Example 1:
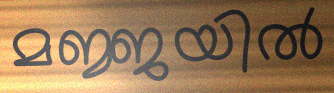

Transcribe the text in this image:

മജ്ജയിൽ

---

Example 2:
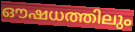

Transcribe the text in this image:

ഔഷധത്തിലും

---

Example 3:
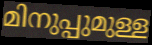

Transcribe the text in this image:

മിനുപ്പുമുള്ള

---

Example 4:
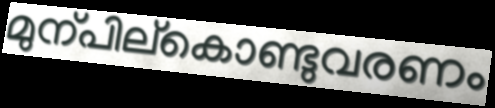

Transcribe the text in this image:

മുന്പില്കൊണ്ടുവരണം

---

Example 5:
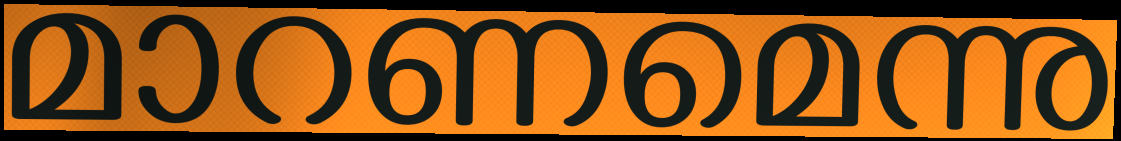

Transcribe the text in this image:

മാറണമെന്നു